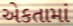
એકતામાં